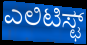
ಎಲಿಟಿಸ್ಟ್